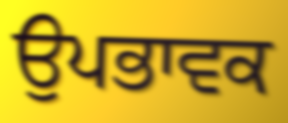
ਉਪਭਾਵਕ